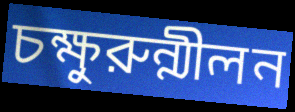
চক্ষুরুন্মীলন